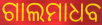
ଗାଲମାଧବ